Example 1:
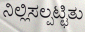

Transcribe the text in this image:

ನಿಲ್ಲಿಸಲ್ಪಟ್ಟಿತು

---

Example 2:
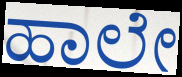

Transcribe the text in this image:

ಹಾಲೇ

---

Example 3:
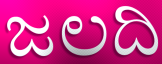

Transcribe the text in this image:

ಜಲದಿ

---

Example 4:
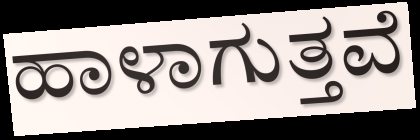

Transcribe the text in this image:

ಹಾಳಾಗುತ್ತವೆ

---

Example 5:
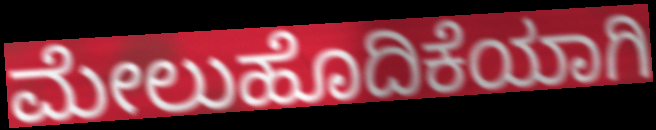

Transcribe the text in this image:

ಮೇಲುಹೊದಿಕೆಯಾಗಿ